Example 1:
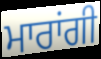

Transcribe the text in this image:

ਮਾਰਾਂਗੀ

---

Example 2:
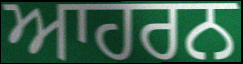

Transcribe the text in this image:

ਆਹਰਨ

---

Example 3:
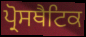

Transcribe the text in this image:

ਪ੍ਰੋਸਥੈਟਿਕ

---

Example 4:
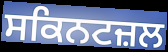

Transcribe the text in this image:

ਸਕਿਨਟਜ਼ਲ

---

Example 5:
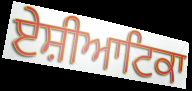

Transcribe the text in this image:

ਏਸ਼ੀਆਟਿਕਾ